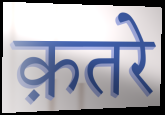
क़तरे